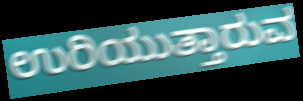
ಉರಿಯುತ್ತಾರುವ